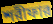
শরীফার